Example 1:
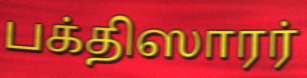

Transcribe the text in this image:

பக்திஸாரர்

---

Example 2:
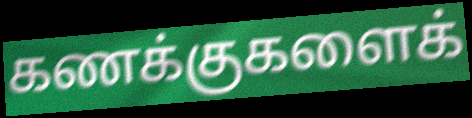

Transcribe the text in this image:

கணக்குகளைக்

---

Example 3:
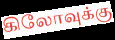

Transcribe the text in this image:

கிலோவுக்கு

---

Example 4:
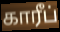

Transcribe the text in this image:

காரீப்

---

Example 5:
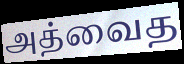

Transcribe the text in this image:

அத்வைத